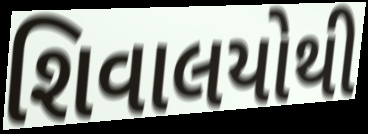
શિવાલયોથી